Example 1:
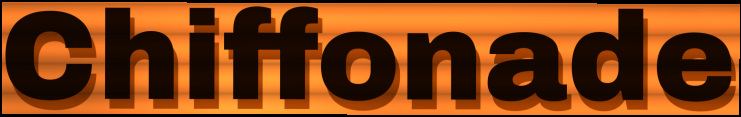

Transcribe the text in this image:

Chiffonade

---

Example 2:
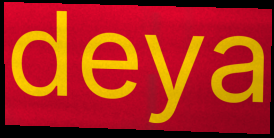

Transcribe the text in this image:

deya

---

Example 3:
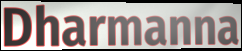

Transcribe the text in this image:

Dharmanna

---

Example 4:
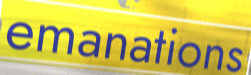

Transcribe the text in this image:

emanations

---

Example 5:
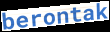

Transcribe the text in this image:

berontak